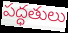
పద్ధతులు